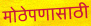
मोठेपणासाठी